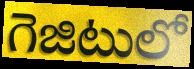
గెజిటులో